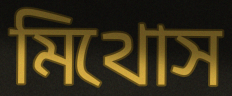
মিথোস